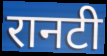
रानटी